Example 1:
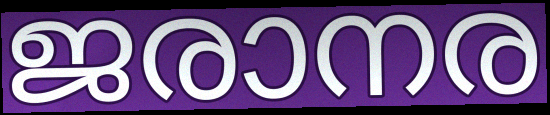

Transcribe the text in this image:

ജരാനര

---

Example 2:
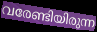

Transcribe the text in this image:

വരേണ്ടിയിരുന്ന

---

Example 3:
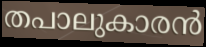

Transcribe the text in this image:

തപാലുകാരൻ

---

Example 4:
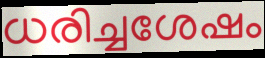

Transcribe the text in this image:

ധരിച്ചശേഷം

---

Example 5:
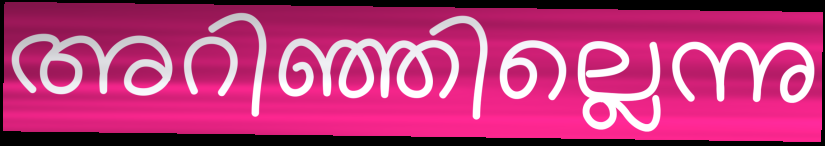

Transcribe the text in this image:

അറിഞ്ഞില്ലെന്നു